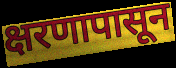
क्षरणापासून